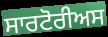
ਸਾਰਟੋਰੀਅਸ